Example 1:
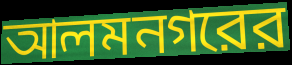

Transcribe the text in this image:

আলমনগরের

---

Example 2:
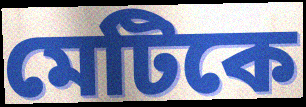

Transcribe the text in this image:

মেটিকে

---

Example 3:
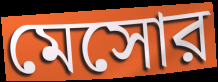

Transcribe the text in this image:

মেসোর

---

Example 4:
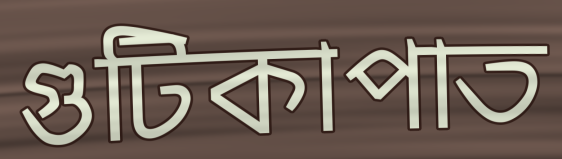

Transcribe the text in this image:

গুটিকাপাত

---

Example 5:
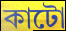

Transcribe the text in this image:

কাটো